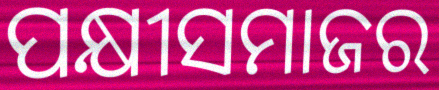
ପକ୍ଷୀସମାଜର